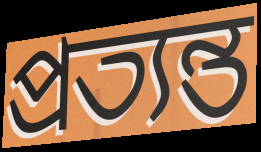
প্রত্যন্ত